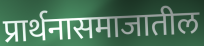
प्रार्थनासमाजातील